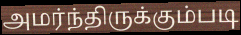
அமர்ந்திருக்கும்படி